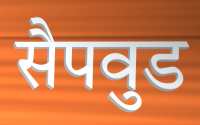
सैपवुड